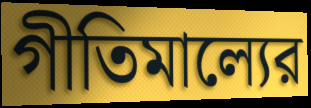
গীতিমাল্যের